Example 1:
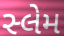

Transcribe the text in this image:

સ્લેમ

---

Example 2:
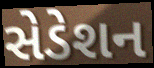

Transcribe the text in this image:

સેડેશન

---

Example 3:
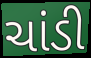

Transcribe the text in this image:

ચાંડી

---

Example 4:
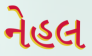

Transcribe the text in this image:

નેહલ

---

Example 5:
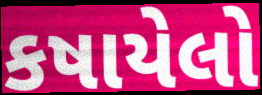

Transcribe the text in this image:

કષાયેલો